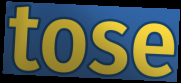
tose